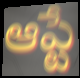
ఆప్టే